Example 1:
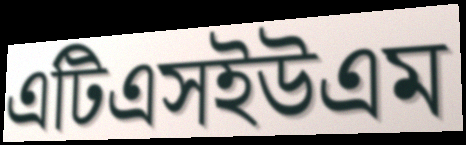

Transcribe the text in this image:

এটিএসইউএম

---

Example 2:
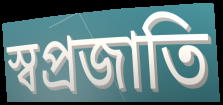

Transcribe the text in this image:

স্বপ্রজাতি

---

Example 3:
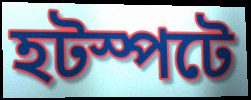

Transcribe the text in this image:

হটস্পটে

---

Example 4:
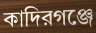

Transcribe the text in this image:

কাদিরগঞ্জে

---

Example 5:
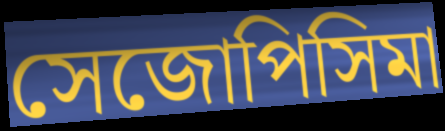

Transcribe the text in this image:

সেজোপিসিমা